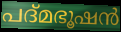
പദ്മഭൂഷൻ